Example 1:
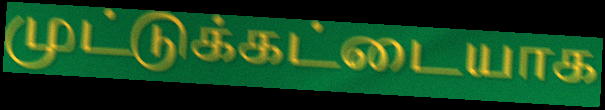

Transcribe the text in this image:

முட்டுக்கட்டையாக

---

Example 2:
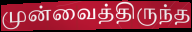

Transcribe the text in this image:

முன்வைத்திருந்த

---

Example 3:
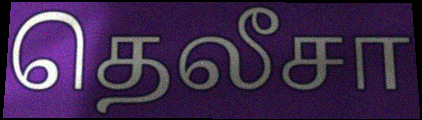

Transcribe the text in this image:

தெலீசா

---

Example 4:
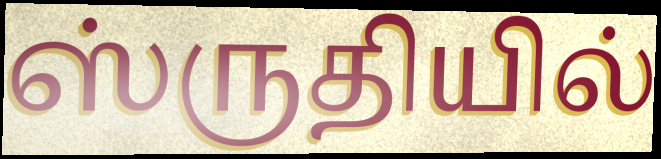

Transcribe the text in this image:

ஸ்ருதியில்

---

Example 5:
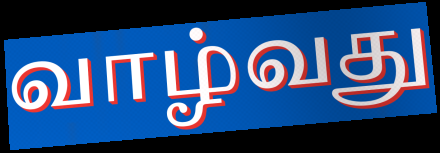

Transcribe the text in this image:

வாழ்வது